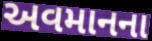
અવમાનના